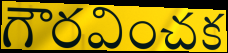
గౌరవించక